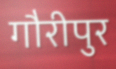
गौरीपुर